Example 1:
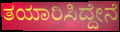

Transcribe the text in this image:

ತಯಾರಿಸಿದ್ದೇನೆ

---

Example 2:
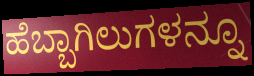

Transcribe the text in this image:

ಹೆಬ್ಬಾಗಿಲುಗಳನ್ನೂ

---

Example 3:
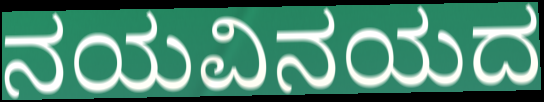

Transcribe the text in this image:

ನಯವಿನಯದ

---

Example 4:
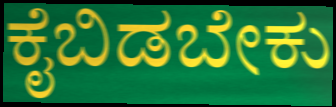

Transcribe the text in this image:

ಕೈಬಿಡಬೇಕು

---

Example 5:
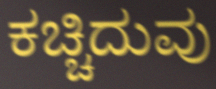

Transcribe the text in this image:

ಕಚ್ಚಿದುವು